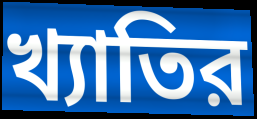
খ্যাতির